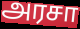
அரசா